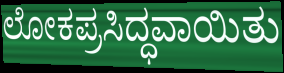
ಲೋಕಪ್ರಸಿದ್ಧವಾಯಿತು